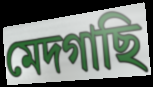
মেদগাছি